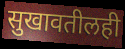
सुखावतीलही